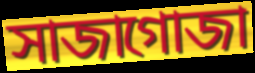
সাজাগোজা